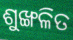
ଶୁଙ୍ଖଳିତ